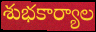
శుభకార్యాల